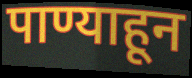
पाण्याहून